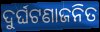
ଦୁର୍ଘଟଣାଜନିତ